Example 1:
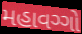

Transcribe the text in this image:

મહાવગ્ગો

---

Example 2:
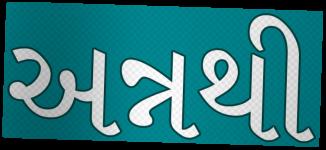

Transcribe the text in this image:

અન્નથી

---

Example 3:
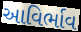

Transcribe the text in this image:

આવિર્ભાવ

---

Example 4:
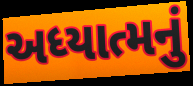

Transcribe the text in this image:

અધ્યાત્મનું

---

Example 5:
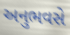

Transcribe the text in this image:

અનુભવસે